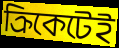
ক্রিকেটেই